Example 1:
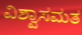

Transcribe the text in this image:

ವಿಶ್ವಾಸಮತ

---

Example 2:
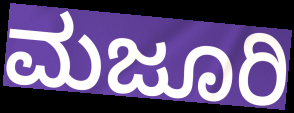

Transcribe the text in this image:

ಮಜೂರಿ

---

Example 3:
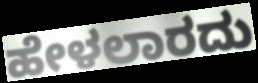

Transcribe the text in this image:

ಹೇಳಲಾರದು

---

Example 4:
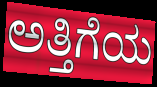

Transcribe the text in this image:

ಅತ್ತಿಗೆಯ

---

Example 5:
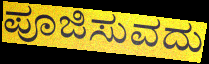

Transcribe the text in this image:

ಪೂಜಿಸುವದು